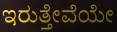
ಇರುತ್ತೇವೆಯೇ